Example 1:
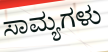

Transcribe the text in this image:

ಸಾಮ್ಯಗಳು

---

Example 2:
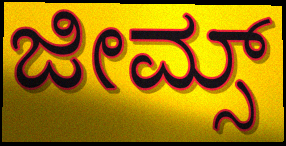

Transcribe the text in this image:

ಜೀಮ್ಸ್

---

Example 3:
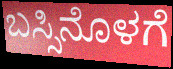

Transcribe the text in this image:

ಬಸ್ಸಿನೊಳಗೆ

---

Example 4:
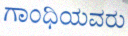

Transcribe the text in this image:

ಗಾಂಧಿಯವರು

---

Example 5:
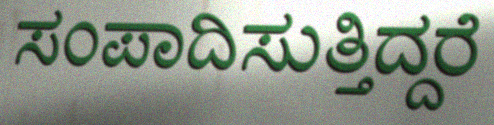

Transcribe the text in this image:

ಸಂಪಾದಿಸುತ್ತಿದ್ದರೆ